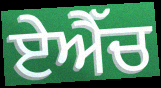
ਏਐੱਚ